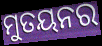
ମୁତୟନର